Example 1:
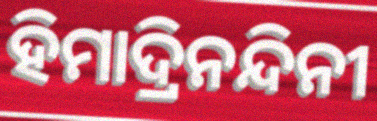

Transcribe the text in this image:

ହିମାଦ୍ରିନନ୍ଦିନୀ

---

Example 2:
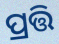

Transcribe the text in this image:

ପ୍ରତ୍ତି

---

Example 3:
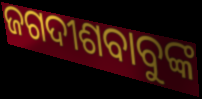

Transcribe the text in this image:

ଜଗଦୀଶବାବୁଙ୍କ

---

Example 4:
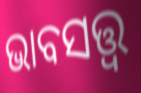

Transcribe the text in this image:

ଭାବସତ୍ତ୍ୱ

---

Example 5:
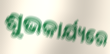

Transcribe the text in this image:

ଶୁଭକାର୍ଯ୍ୟରେ